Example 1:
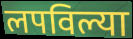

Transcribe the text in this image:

लपविल्या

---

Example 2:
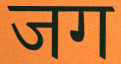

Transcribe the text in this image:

जग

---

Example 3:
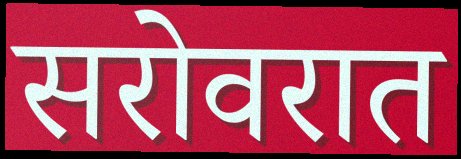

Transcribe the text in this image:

सरोवरात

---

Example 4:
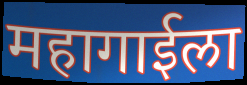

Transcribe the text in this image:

महागाईला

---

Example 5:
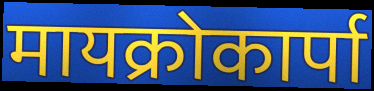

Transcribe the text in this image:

मायक्रोकार्पा